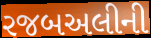
રજબઅલીની